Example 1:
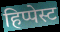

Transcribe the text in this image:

हिप्पेस्ट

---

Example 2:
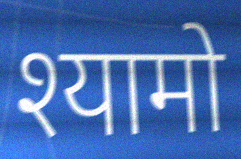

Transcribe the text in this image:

श्यामो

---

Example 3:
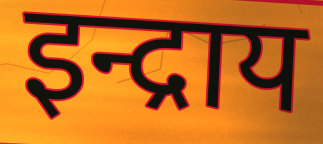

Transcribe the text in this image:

इन्द्राय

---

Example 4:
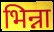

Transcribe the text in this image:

भिन्ना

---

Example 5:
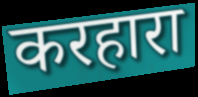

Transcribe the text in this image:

करहारा